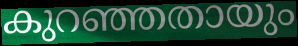
കുറഞ്ഞതായും